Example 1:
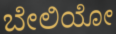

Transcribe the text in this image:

ಬೇಲಿಯೋ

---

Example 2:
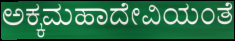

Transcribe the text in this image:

ಅಕ್ಕಮಹಾದೇವಿಯಂತೆ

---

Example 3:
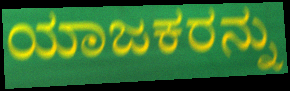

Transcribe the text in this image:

ಯಾಜಕರನ್ನು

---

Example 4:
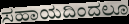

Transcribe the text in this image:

ಸಹಾಯದಿಂದಲೂ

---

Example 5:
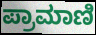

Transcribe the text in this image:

ಪ್ರಾಮಾಣಿ